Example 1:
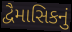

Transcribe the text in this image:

દ્વૈમાસિકનું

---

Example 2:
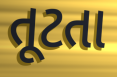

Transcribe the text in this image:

તૂટતા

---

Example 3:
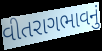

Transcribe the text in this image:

વીતરાગભાવનું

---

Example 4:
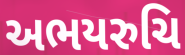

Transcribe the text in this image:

અભયરુચિ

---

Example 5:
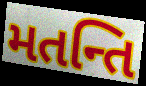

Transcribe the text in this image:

મતન્તિ